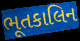
ભૂતકાલિન